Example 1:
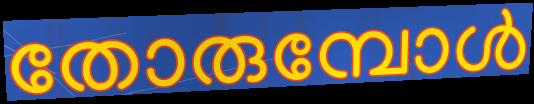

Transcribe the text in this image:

തോരുമ്പോൾ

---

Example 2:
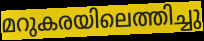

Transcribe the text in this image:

മറുകരയിലെത്തിച്ചു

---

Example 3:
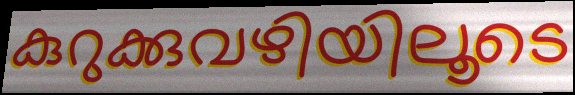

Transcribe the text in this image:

കുറുക്കുവഴിയിലൂടെ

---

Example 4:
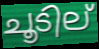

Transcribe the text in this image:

ചൂടില്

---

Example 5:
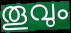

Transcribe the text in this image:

തൂവും